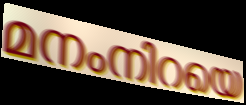
മനംനിറയെ